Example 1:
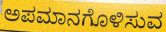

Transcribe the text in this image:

ಅಪಮಾನಗೊಳಿಸುವ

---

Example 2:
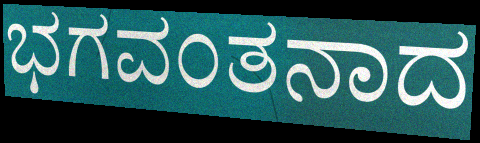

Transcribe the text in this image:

ಭಗವಂತನಾದ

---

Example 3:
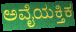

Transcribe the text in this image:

ಅವೈಯಕ್ತಿಕ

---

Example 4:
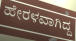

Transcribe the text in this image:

ಹೇರಳವಾಗಿದ್ದ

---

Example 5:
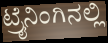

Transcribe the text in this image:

ಟ್ರೈನಿಂಗಿನಲ್ಲಿ